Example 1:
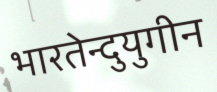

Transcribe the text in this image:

भारतेन्दुयुगीन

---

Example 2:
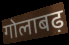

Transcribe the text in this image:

गोलाबढ़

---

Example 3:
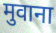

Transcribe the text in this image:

मुवाना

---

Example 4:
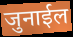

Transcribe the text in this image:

जुनाईल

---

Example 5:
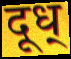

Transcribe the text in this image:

दूध्